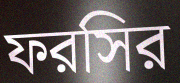
ফরসির